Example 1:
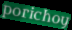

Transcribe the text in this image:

porichoy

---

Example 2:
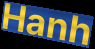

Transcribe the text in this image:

Hanh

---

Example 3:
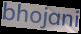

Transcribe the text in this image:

bhojani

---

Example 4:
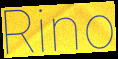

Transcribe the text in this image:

Rino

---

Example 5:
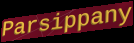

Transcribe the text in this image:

Parsippany